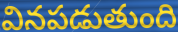
వినపడుతుంది